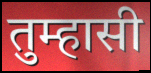
तुम्हासी